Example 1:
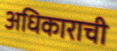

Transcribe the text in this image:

अधिकाराची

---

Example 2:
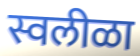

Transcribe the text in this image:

स्वलीळा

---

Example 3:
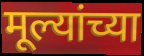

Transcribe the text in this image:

मूल्यांच्या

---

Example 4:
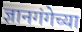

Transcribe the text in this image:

ज्ञानगंगेच्या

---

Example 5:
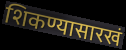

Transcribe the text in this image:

शिकण्यासारखं